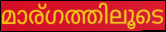
മാര്ഗത്തിലൂടെ